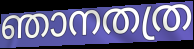
ഞാനതത്ര